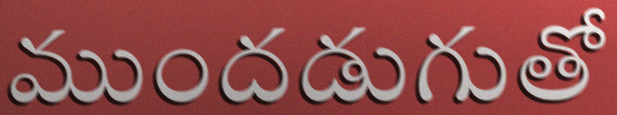
ముందడుగుతో